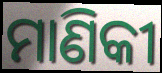
ମାଣିକୀ